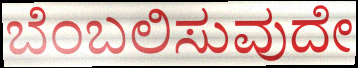
ಬೆಂಬಲಿಸುವುದೇ